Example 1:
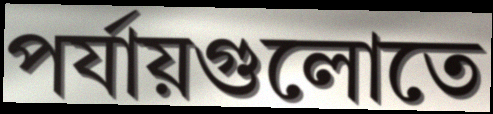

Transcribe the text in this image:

পর্যায়গুলোতে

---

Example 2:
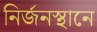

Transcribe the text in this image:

নির্জনস্থানে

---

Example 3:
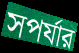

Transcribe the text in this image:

সপর্যার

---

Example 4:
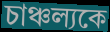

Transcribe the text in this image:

চাঞ্চল্যকে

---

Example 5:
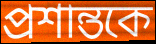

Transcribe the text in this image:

প্রশান্তকে